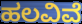
ಹಲವಿವೆ